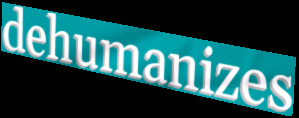
dehumanizes